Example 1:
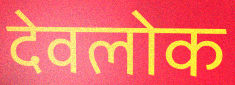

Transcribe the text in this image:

देवलोक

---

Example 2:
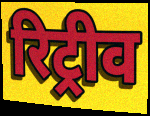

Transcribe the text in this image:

रिट्रीव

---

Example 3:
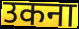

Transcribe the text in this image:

उकना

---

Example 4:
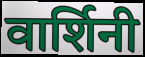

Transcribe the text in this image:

वार्शिनी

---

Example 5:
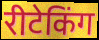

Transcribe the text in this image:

रीटेकिंग